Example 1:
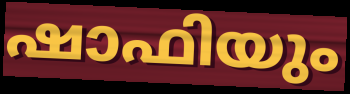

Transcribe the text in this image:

ഷാഫിയും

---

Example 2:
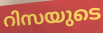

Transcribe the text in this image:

റിസയുടെ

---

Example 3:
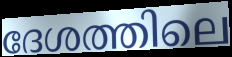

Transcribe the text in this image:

ദേശത്തിലെ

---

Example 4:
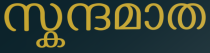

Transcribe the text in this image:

സ്കന്ദമാത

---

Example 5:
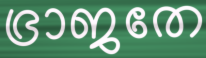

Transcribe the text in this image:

ഭ്രാജതേ